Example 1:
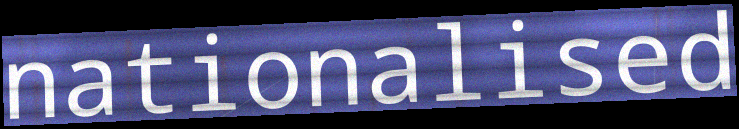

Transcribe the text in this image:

nationalised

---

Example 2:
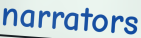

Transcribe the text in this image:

narrators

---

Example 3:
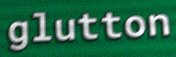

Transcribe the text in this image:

glutton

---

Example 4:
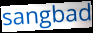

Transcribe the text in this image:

sangbad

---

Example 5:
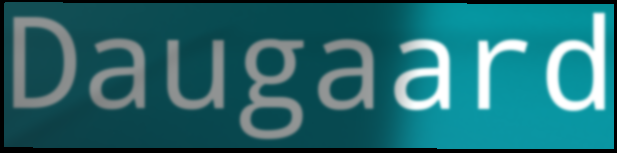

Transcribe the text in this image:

Daugaard